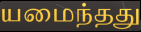
யமைந்தது